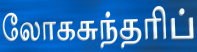
லோகசுந்தரிப்